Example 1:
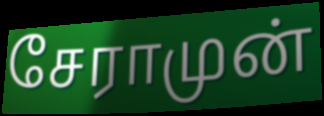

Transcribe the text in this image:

சேராமுன்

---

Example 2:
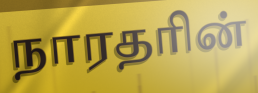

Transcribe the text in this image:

நாரதரின்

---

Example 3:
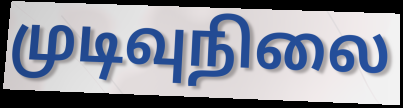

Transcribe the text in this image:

முடிவுநிலை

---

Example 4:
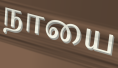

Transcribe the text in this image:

நாயை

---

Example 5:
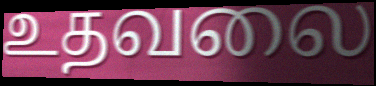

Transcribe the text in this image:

உதவலை